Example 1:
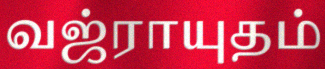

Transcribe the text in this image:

வஜ்ராயுதம்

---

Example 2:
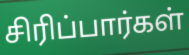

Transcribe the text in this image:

சிரிப்பார்கள்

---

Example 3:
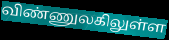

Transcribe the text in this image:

விண்ணுலகிலுள்ள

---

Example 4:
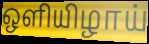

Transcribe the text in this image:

ஒளியிழாய்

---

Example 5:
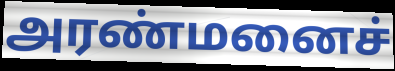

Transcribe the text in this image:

அரண்மனைச்